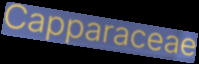
Capparaceae